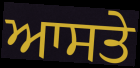
ਆਸਤੇ